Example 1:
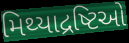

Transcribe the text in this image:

મિથ્યાદ્રષ્ટિઓ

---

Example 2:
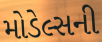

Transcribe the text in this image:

મોડેલ્સની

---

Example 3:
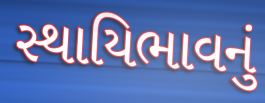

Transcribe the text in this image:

સ્થાયિભાવનું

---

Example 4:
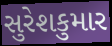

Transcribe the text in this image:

સુરેશકુમાર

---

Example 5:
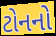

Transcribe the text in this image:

ટોનનો